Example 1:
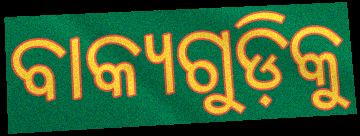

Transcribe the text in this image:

ବାକ୍ୟଗୁଡ଼ିକୁ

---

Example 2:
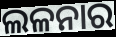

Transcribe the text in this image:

ଲଳନାର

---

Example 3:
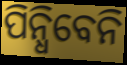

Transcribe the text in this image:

ପିନ୍ଧିବେନି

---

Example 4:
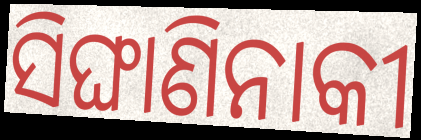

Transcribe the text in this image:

ସିଙ୍ଘାଣିନାକୀ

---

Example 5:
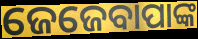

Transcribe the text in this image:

ଜେଜେବାପାଙ୍କ